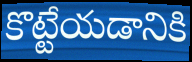
కొట్టేయడానికి